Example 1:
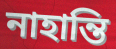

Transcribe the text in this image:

নাহান্তি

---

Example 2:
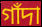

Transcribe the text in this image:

গাঁদা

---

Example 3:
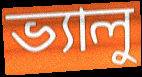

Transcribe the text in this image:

ভ্যালু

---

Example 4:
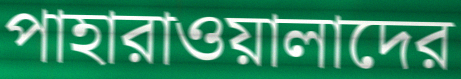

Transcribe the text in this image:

পাহারাওয়ালাদের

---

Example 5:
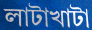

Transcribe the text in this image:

লাটাখাটা